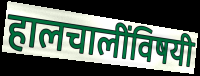
हालचालींविषयी